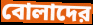
বোলাদের